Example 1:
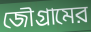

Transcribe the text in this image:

জৌগ্রামের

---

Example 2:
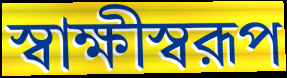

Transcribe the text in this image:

স্বাক্ষীস্বরূপ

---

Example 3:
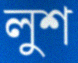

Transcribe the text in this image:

লুশ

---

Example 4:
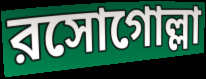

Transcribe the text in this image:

রসোগোল্লা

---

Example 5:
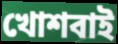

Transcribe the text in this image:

খোশবাই